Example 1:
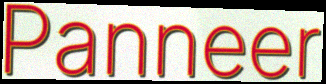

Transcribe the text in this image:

Panneer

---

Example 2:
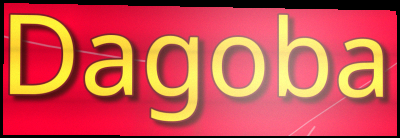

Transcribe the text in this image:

Dagoba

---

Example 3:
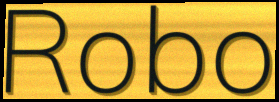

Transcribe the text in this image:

Robo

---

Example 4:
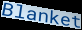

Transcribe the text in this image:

Blanket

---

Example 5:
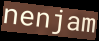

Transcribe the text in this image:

nenjam